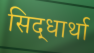
सिद्धार्था